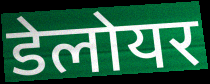
डेलोयर